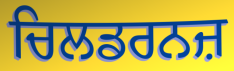
ਚਿਲਡਰਨਜ਼